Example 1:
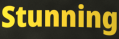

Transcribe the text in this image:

Stunning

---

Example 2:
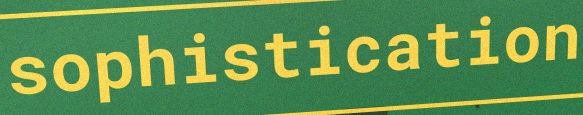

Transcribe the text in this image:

sophistication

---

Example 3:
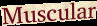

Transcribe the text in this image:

Muscular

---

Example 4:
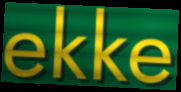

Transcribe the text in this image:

ekke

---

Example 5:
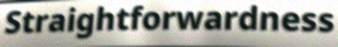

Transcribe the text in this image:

Straightforwardness